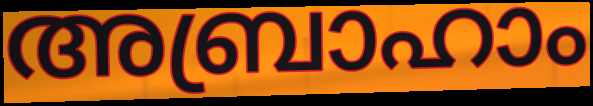
അബ്രാഹാം